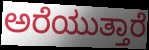
ಅರೆಯುತ್ತಾರೆ